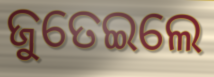
ଜୁତେଇଲେ